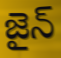
జైన్